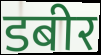
डबीर